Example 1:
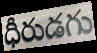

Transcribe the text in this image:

ధీరుడగు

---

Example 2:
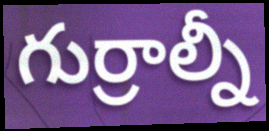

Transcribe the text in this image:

గుర్రాల్నీ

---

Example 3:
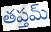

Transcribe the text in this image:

తప్తమ్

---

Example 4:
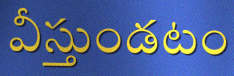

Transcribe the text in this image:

వీస్తుండటం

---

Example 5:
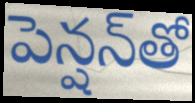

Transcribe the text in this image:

పెన్షన్‌తో